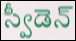
స్వీడెన్